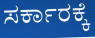
ಸರ್ಕಾರಕ್ಕೆ